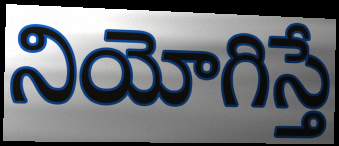
నియోగిస్తే